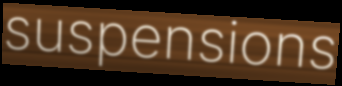
suspensions